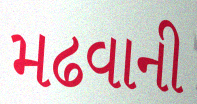
મઢવાની